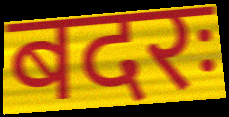
बदरः